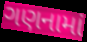
ગણનામાં